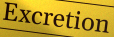
Excretion